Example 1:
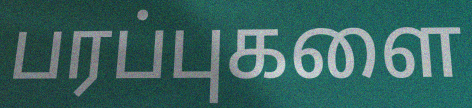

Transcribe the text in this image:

பரப்புகளை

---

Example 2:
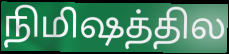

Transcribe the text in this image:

நிமிஷத்தில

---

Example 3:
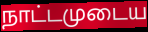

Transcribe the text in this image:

நாட்டமுடைய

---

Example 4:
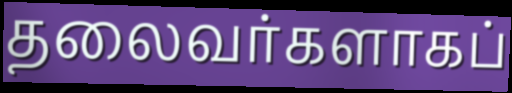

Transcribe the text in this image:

தலைவர்களாகப்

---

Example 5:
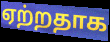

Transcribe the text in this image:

ஏற்றதாக